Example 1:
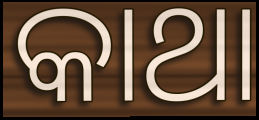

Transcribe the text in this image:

କାଥା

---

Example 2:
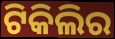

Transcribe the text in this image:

ଟିକିଲିର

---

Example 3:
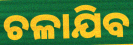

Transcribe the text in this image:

ଚଳାଯିବ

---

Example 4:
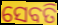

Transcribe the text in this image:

ସେବତି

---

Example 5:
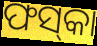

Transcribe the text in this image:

ଫସ୍‌କା